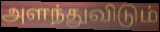
அளந்துவிடும்